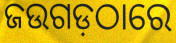
ଜଉଗଡ଼ଠାରେ